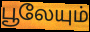
பூலேயும்